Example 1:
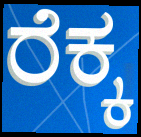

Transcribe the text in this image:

ರೆಕ್ಕ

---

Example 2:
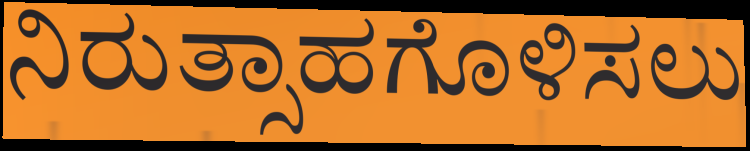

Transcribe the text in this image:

ನಿರುತ್ಸಾಹಗೊಳಿಸಲು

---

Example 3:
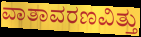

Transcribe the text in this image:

ವಾತಾವರಣವಿತ್ತು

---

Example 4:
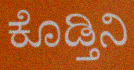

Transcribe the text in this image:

ಕೊಡ್ತಿನಿ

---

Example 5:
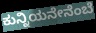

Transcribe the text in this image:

ಕುನ್ನಿಯನೇನೆಂಬೆ